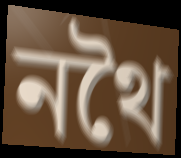
নথৈ